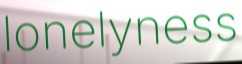
lonelyness